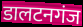
डालटनगंज